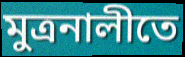
মুত্রনালীতে